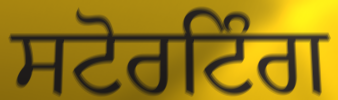
ਸਟੋਰਟਿੰਗ